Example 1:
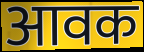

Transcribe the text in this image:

आवक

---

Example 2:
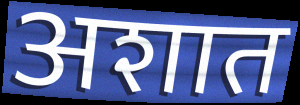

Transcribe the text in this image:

अशात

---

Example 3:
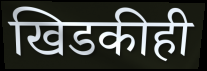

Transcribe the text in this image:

खिडकीही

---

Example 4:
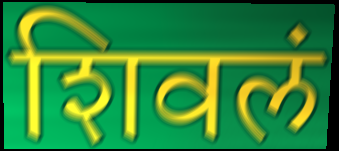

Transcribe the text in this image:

शिवलं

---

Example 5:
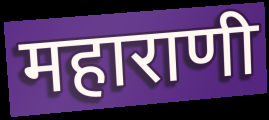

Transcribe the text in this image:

महाराणी